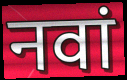
नवां